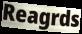
Reagrds